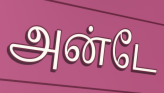
அன்டே